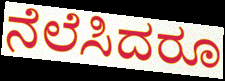
ನೆಲೆಸಿದರೂ